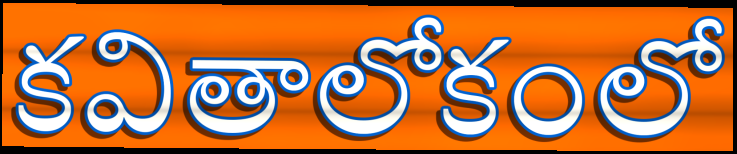
కవితాలోకంలో